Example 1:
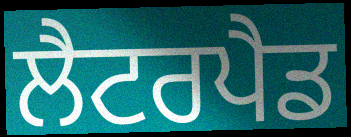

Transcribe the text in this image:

ਲੈਟਰਪੈਡ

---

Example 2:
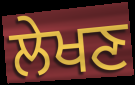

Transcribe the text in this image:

ਲੇਖਣ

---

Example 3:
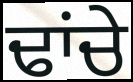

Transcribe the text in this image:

ਢਾਂਚੇ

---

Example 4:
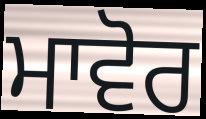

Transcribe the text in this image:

ਮਾਵੋਰ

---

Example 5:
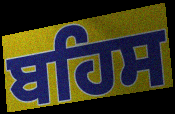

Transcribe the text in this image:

ਬਹਿਸ